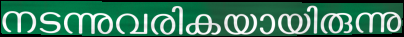
നടന്നുവരികയായിരുന്നു